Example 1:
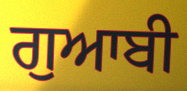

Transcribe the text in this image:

ਗੁਆਬੀ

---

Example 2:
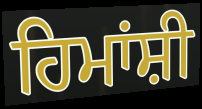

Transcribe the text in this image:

ਹਿਮਾਂਸ਼ੀ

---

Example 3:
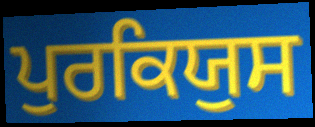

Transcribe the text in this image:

ਪੁਰਕਿਯੁਸ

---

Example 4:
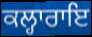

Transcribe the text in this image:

ਕਲ੍ਹਾਰਾਇ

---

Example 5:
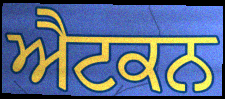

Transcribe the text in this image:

ਐਟਕਨ